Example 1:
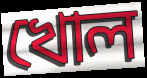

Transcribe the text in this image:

খোল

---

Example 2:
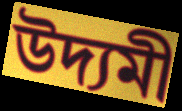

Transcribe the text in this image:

উদ্যমী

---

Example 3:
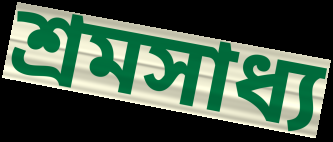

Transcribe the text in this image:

শ্ৰমসাধ্য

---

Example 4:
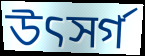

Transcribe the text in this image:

উৎসৰ্গ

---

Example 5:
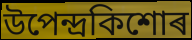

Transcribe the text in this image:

উপেন্দ্ৰকিশোৰ